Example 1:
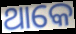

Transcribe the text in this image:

ଥାକେ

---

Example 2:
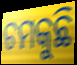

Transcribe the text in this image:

ଚମକୁଛି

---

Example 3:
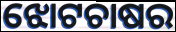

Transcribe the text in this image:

ଝୋଟଚାଷର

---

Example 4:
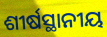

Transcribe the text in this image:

ଶୀର୍ଷସ୍ଥାନୀୟ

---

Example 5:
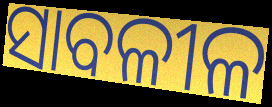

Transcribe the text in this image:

ସାବଳୀଳ